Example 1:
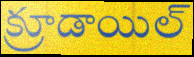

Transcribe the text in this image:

క్రూడాయిల్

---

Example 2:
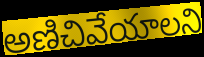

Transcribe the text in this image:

అణిచివేయాలని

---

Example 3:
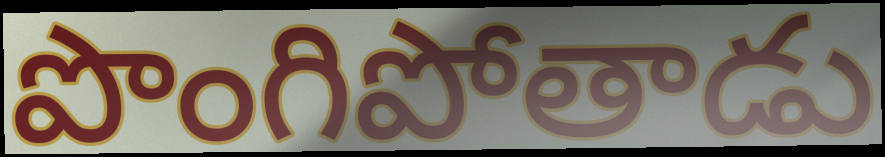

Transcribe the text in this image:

పొంగిపోతాడు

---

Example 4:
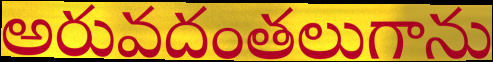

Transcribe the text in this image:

అరువదంతలుగాను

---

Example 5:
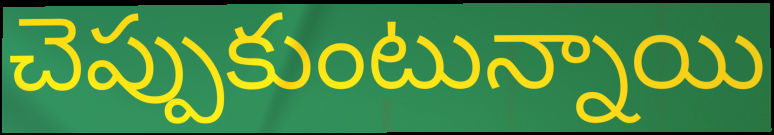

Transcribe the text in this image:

చెప్పుకుంటున్నాయి